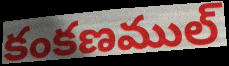
కంకణముల్